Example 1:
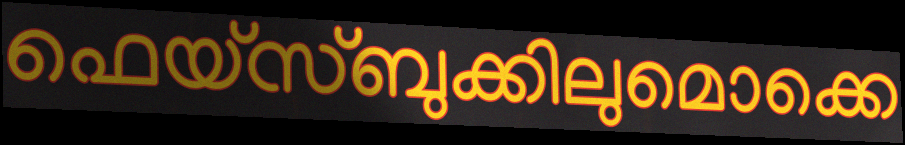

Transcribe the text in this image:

ഫെയ്സ്ബുക്കിലുമൊക്കെ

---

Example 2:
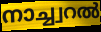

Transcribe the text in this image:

നാച്ച്വറൽ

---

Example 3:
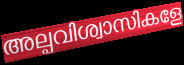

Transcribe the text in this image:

അല്പവിശ്വാസികളേ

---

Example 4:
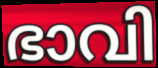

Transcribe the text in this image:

ഭാവി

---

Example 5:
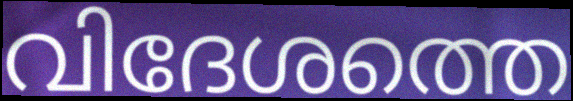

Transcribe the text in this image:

വിദേശത്തെ